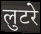
लुटरे